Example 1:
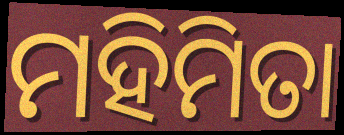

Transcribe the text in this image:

ମହିମିତା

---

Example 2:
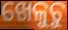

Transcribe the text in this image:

ଖେଳୁଚୁ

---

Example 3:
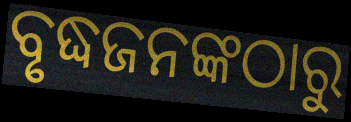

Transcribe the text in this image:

ବୃଦ୍ଧଜନଙ୍କଠାରୁ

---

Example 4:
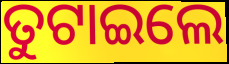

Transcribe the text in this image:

ତୁଟାଇଲେ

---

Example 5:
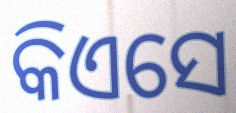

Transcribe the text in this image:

କିଏସେ